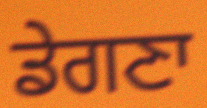
ਡੇਗਣਾ